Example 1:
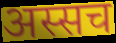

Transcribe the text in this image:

अस्सच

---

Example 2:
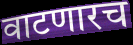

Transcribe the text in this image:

वाटणारच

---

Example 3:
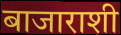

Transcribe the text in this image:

बाजाराशी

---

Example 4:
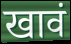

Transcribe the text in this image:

खावं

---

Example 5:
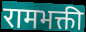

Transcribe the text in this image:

रामभक्ती